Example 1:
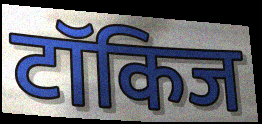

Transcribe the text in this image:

टॉकिज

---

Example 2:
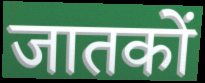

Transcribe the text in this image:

जातकों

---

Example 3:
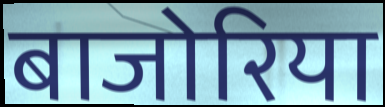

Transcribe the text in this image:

बाजोरिया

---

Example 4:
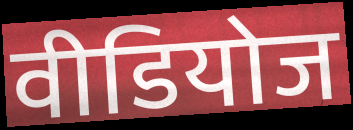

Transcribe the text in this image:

वीडियोज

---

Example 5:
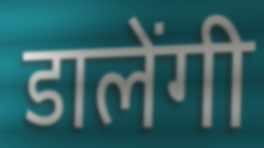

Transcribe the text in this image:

डालेंगी